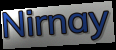
Nirnay